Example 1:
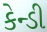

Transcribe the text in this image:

કેન્ડી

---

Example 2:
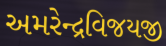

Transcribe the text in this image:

અમરેન્દ્રવિજયજી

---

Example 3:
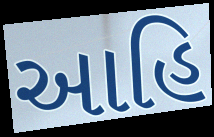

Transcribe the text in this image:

આહિ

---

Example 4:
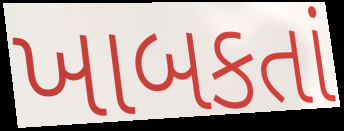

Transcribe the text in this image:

ખાબકતાં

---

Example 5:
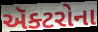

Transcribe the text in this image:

ઍક્ટરોના